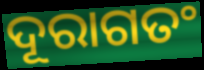
ଦୂରାଗତଂ